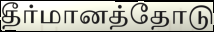
தீர்மானத்தோடு